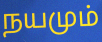
நயமும்